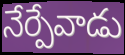
నేర్పేవాడు